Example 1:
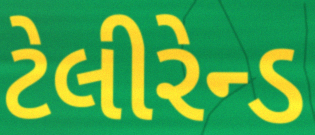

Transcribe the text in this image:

ટેલીરેન્ડ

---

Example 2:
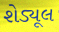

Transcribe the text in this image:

શેડ્યૂલ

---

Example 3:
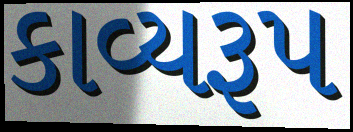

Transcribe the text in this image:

કાવ્યરૂપ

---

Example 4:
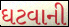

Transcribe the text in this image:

ઘટવાની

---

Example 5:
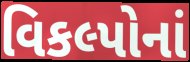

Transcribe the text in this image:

વિકલ્પોનાં